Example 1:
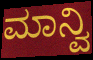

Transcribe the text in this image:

ಮಾನ್ವಿ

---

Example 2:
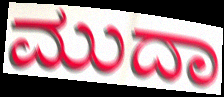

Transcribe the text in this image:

ಮುದಾ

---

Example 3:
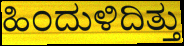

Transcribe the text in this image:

ಹಿಂದುಳಿದಿತ್ತು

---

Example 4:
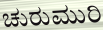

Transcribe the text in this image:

ಚುರುಮುರಿ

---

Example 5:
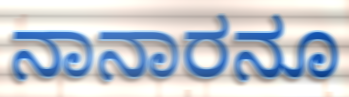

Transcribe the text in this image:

ನಾನಾರನೂ